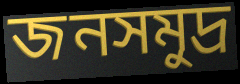
জনসমুদ্র